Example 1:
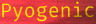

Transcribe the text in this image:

Pyogenic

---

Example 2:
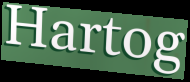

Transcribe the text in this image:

Hartog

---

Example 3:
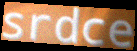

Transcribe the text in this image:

srdce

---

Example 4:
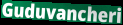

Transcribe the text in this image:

Guduvancheri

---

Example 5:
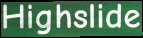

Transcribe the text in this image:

Highslide